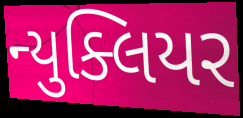
ન્યુક્લિયર